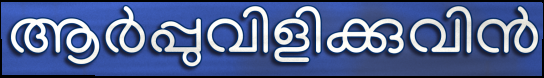
ആർപ്പുവിളിക്കുവിൻ